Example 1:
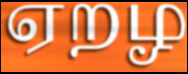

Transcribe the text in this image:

ஏறழ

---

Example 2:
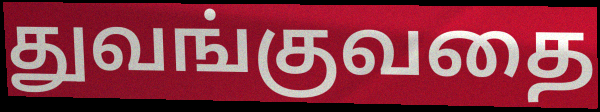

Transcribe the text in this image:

துவங்குவதை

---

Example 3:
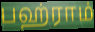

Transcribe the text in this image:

பஹ்ராம்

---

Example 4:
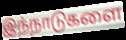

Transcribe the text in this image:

இந்நாடுகளை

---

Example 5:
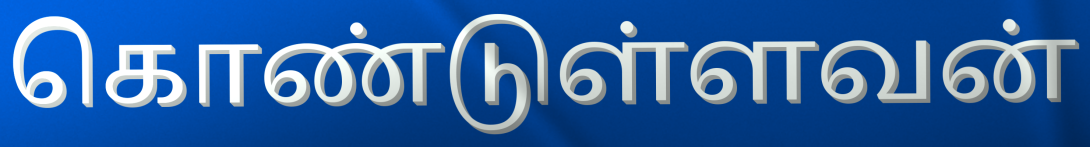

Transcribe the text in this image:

கொண்டுள்ளவன்